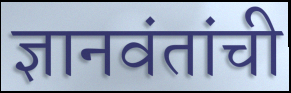
ज्ञानवंतांची